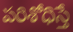
పరిశోధిస్తే